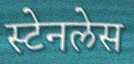
स्टेनलेस